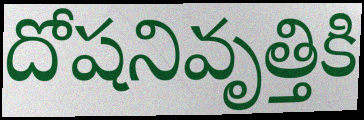
దోషనివృత్తికి